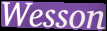
Wesson